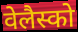
वेलैस्को